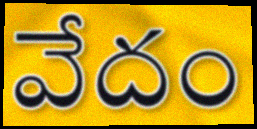
వేదం